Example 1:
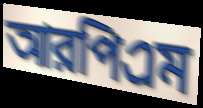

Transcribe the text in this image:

আরপিএম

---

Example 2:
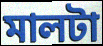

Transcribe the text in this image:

মালটা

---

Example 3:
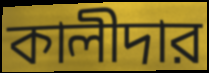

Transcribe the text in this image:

কালীদার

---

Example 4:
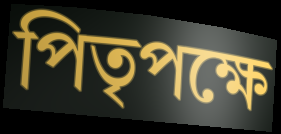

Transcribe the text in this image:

পিতৃপক্ষে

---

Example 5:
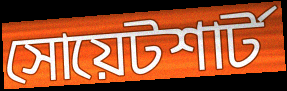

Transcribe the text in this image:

সোয়েটশার্ট